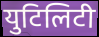
युटिलिटी